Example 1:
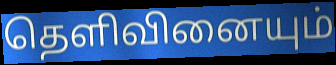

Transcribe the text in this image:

தெளிவினையும்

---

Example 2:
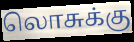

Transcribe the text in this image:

லொசுக்கு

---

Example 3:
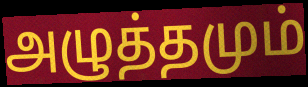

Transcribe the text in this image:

அழுத்தமும்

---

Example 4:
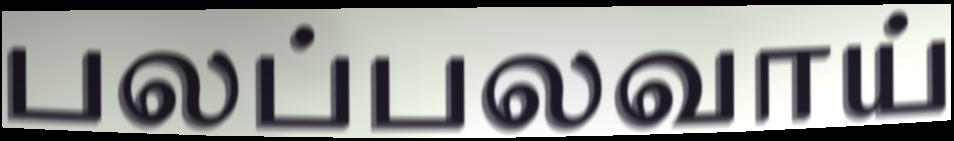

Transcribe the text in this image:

பலப்பலவாய்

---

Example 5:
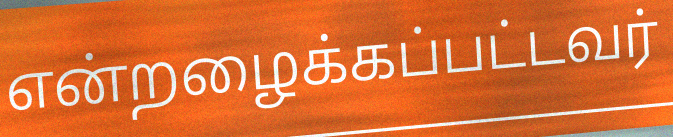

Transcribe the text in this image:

என்றழைக்கப்பட்டவர்